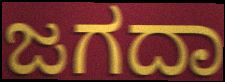
ಜಗದಾ